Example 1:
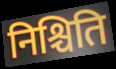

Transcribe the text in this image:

निश्चिति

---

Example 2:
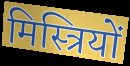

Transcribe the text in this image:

मिस्त्रियों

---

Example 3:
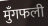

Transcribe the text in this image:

मुँगफली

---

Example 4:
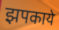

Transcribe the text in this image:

झपकाये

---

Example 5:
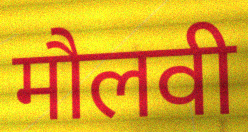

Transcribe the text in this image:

मौलवी